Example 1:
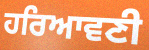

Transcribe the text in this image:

ਹਰਿਆਵਣੀ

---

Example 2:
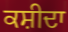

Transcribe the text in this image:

ਕਸ਼ੀਦਾ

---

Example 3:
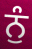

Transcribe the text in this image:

ਨੁੰ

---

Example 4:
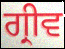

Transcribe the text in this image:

ਗ੍ਰੀਵ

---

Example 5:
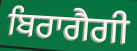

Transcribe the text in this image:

ਬਿਰਾਗੈਗੀ